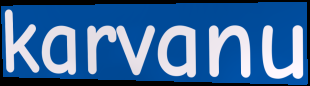
karvanu